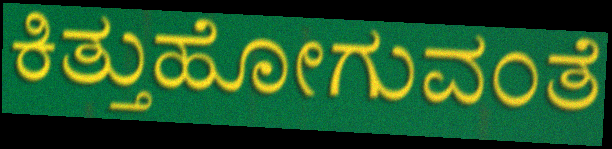
ಕಿತ್ತುಹೋಗುವಂತೆ